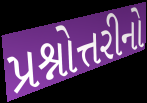
પ્રશ્નોત્તરીનો